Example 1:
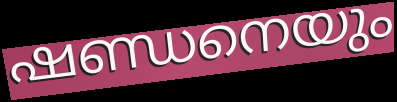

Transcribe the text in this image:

ഷണ്ഡനെയും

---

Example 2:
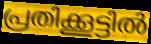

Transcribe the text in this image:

പ്രതിക്കൂട്ടിൽ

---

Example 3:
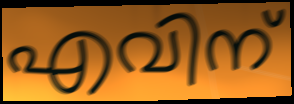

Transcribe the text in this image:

എവിന്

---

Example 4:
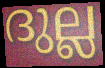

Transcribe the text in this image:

ദുല്ല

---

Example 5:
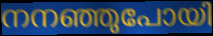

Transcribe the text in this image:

നനഞ്ഞുപോയി